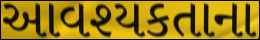
આવશ્યકતાના